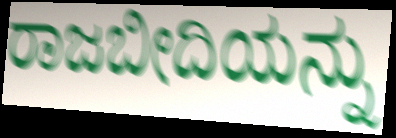
ರಾಜಬೀದಿಯನ್ನು